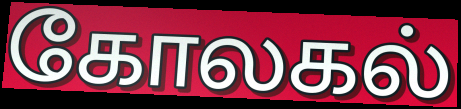
கோலகல்